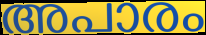
അപാരം